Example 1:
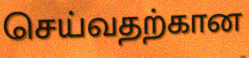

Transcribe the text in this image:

செய்வதற்கான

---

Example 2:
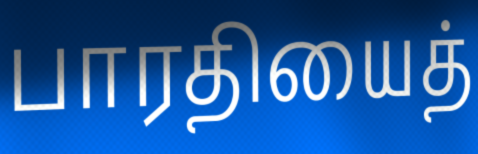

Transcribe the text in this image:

பாரதியைத்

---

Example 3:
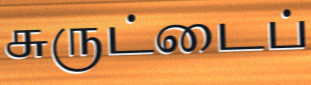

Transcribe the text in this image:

சுருட்டைப்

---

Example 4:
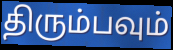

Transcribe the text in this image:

திரும்பவும்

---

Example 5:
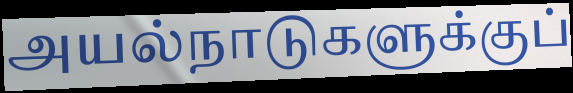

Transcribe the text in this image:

அயல்நாடுகளுக்குப்